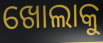
ଖୋଲାକୁ